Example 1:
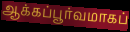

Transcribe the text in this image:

ஆக்கப்பூர்வமாகப்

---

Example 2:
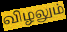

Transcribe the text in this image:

விழலும்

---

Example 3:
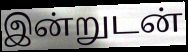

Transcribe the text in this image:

இன்றுடன்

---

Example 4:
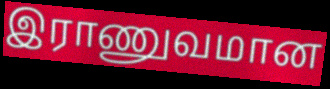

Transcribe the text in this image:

இராணுவமான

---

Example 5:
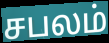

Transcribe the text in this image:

சபலம்